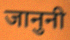
जानुनी